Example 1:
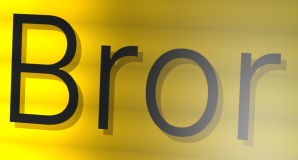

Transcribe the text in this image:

Bror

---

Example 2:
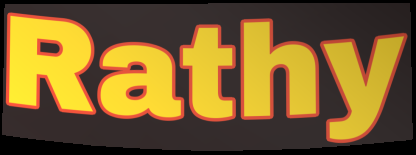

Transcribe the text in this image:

Rathy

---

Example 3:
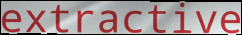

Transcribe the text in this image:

extractive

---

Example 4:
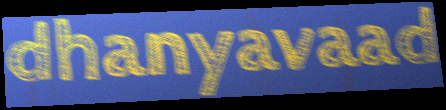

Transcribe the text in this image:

dhanyavaad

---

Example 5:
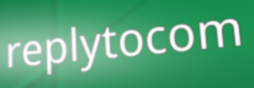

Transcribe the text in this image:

replytocom